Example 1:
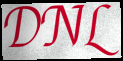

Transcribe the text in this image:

DNL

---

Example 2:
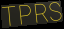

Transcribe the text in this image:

TPRS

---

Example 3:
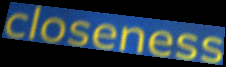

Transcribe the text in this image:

closeness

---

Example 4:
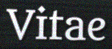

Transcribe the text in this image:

Vitae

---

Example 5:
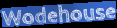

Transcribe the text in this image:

Wodehouse